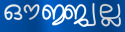
ഔജ്ജ്വല്ല